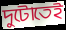
দুটোতেই